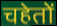
चहेतों